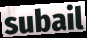
subail